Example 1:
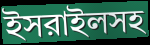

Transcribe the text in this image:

ইসরাইলসহ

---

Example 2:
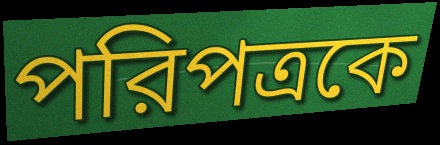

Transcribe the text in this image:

পরিপত্রকে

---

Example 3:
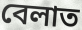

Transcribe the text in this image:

বেলাত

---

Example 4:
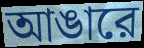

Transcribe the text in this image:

আঙারে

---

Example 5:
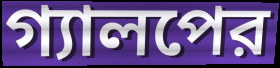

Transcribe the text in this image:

গ্যালপের